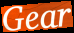
Gear